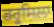
ਡਰੂਸਿਲਾ